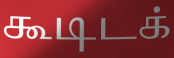
கூடிடக்